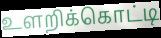
உளறிக்கொட்டி